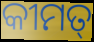
କୀମତ୍